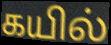
கயில்